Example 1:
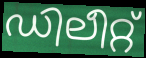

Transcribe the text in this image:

ഡിലീറ്റ്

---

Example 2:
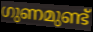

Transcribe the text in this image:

ഗുണമുണ്ട്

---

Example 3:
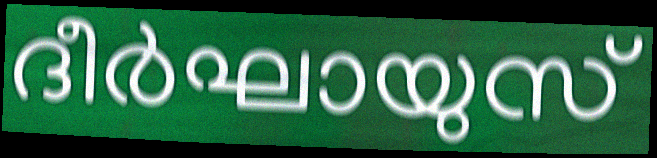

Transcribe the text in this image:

ദീർഘായുസ്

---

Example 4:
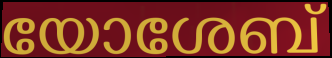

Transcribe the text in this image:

യോശേബ്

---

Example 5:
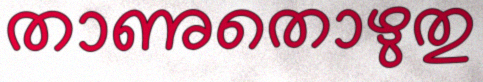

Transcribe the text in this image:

താണുതൊഴുതു